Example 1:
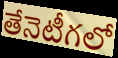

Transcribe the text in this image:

తేనెటీగలో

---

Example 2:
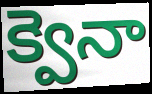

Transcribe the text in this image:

క్వెనా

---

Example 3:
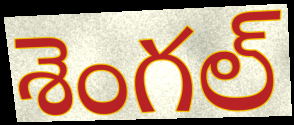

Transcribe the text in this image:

శెంగల్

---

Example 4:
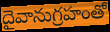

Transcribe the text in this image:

దైవానుగ్రహంతో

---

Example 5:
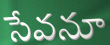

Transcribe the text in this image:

సేవనూ